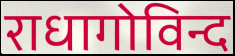
राधागोविन्द